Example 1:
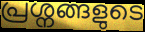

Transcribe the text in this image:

പ്രശ്നങ്ങളുടെ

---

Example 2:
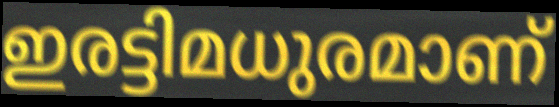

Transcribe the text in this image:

ഇരട്ടിമധുരമാണ്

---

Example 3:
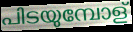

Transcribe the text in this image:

പിടയുമ്പോള്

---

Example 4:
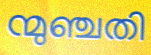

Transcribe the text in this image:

ന്മുഞ്ചതി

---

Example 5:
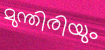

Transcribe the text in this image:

മുന്തിരിയും